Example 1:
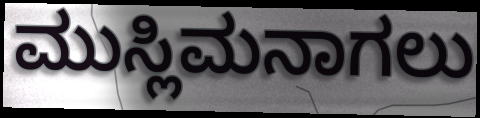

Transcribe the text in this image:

ಮುಸ್ಲಿಮನಾಗಲು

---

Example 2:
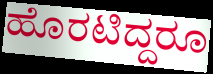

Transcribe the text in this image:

ಹೊರಟಿದ್ದರೂ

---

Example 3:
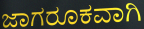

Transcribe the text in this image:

ಜಾಗರೂಕವಾಗಿ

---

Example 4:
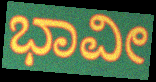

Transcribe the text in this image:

ಭಾವೀ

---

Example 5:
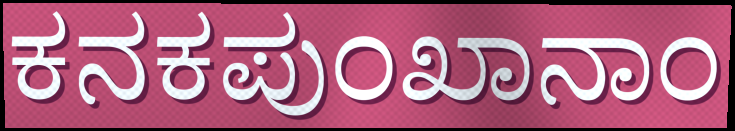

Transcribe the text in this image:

ಕನಕಪುಂಖಾನಾಂ